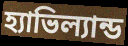
হ্যাভিল্যান্ড